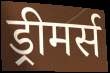
ड्रीमर्स